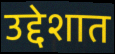
उद्देशात